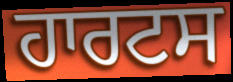
ਹਾਰਟਸ